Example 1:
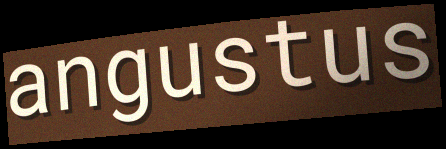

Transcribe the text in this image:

angustus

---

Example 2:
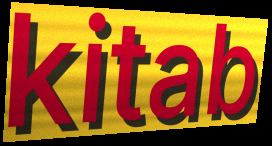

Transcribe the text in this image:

kitab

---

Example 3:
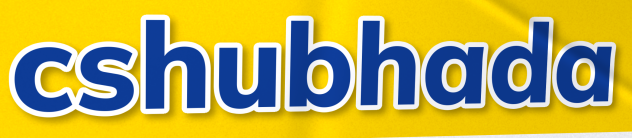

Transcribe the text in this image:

cshubhada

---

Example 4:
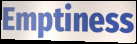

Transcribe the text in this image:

Emptiness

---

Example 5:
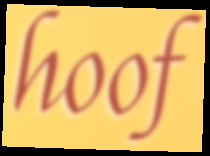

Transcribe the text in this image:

hoof